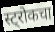
स्ट्रोकचा